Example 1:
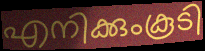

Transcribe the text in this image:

എനിക്കുംകൂടി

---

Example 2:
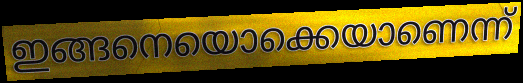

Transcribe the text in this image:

ഇങ്ങനെയൊക്കെയാണെന്ന്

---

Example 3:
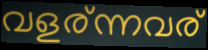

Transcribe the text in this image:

വളര്ന്നവര്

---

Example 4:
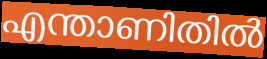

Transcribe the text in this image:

എന്താണിതിൽ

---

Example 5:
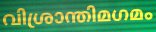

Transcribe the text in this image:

വിശ്രാന്തിമഗമം